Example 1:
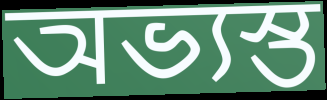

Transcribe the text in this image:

অভ্যস্ত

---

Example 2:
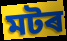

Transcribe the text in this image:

মটৰ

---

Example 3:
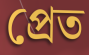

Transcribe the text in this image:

প্ৰেত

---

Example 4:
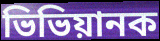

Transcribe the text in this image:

ভিভিয়ানক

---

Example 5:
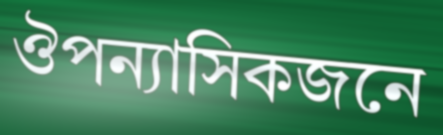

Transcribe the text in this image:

ঔপন্যাসিকজনে